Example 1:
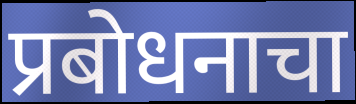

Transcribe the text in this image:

प्रबोधनाचा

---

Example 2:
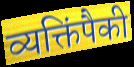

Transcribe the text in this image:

व्यक्तिंपैकी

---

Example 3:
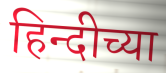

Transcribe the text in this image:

हिन्दीच्या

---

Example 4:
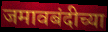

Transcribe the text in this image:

जमावबंदीच्या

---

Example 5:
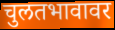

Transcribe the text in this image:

चुलतभावावर